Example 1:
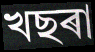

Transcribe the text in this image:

খছৰা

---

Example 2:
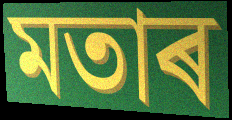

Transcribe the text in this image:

মতাৰ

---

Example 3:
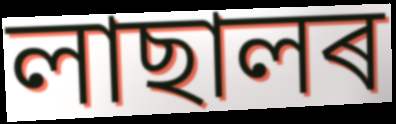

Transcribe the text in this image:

লাছালৰ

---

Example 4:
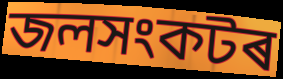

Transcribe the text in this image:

জলসংকটৰ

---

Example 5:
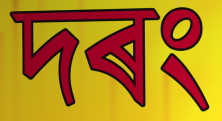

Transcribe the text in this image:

দৰং